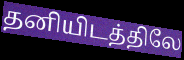
தனியிடத்திலே